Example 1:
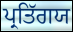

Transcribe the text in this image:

ਪ੍ਰਤਿੱਗਯ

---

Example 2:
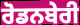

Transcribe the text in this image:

ਰੋਡਨਬੇਰੀ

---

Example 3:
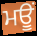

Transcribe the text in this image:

ਮਊਂ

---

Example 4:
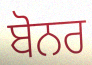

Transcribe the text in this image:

ਬੋਨਰ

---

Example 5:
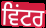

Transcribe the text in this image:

ਵਿਂਟਰ